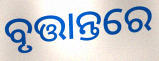
ବୃତ୍ତାନ୍ତରେ